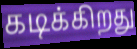
கடிக்கிறது